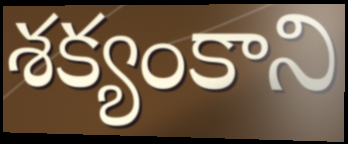
శక్యంకాని